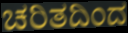
ಚರಿತದಿಂದ